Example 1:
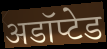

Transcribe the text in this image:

अडॉप्टेड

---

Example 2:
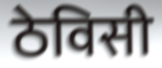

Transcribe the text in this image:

ठेविसी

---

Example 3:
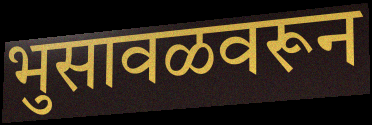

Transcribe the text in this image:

भुसावळवरून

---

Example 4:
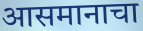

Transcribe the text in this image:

आसमानाचा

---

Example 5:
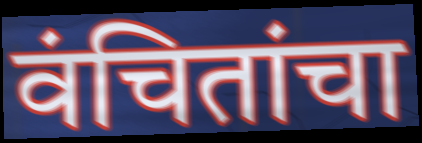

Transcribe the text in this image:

वंचितांचा